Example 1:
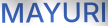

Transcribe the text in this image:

MAYURI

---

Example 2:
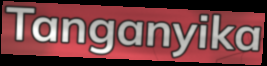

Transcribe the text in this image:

Tanganyika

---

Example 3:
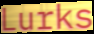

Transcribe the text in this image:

Lurks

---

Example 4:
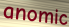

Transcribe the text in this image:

anomic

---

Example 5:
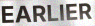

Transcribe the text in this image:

EARLIER